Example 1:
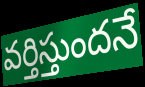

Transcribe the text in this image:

వర్తిస్తుందనే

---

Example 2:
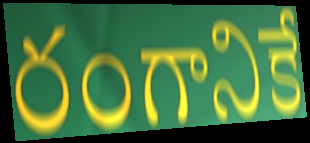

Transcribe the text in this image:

రంగానికే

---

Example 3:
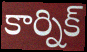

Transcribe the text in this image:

కార్నిక్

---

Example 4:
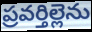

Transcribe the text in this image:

ప్రవర్తిల్లెను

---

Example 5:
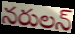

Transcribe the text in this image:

నరులన్